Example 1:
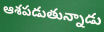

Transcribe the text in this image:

ఆశపడుతున్నాడు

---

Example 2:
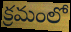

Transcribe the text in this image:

క్రమంలో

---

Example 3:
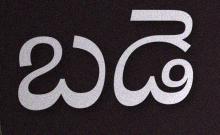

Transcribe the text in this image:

బడె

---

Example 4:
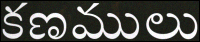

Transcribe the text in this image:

కణములు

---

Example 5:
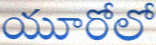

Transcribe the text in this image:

యూరోలో